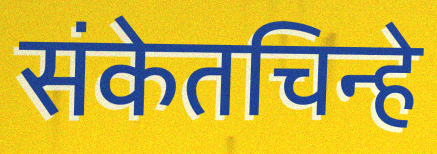
संकेतचिन्हे